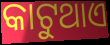
କାଟୁଥାଏ